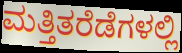
ಮತ್ತಿತರೆಡೆಗಳಲ್ಲಿ